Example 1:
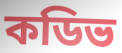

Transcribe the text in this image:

কডিভ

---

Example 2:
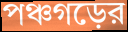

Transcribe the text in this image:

পঞ্চগড়ের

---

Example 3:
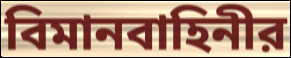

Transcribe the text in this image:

বিমানবাহিনীর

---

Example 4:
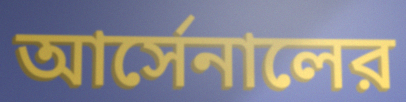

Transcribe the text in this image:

আর্সেনালের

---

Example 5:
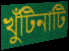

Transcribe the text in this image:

খুঁটিনাটি